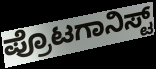
ಪ್ರೊಟಗಾನಿಸ್ಟ್